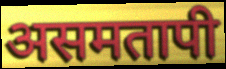
असमतापी